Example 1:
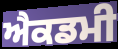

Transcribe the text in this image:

ਐਕਡਮੀ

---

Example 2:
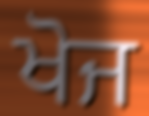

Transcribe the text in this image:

ਖੋਜ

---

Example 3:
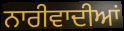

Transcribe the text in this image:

ਨਾਰੀਵਾਦੀਆਂ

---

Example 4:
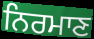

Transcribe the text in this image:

ਨਿਰਮਾਣ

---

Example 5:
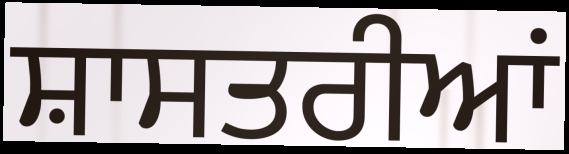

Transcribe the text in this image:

ਸ਼ਾਸਤਰੀਆਂ